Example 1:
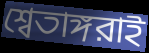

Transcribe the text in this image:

শ্বেতাঙ্গরাই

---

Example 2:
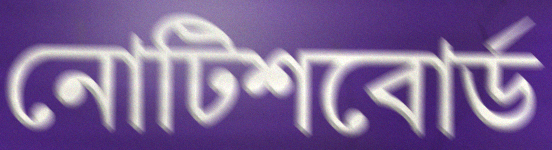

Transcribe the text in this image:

নোটিশবোর্ড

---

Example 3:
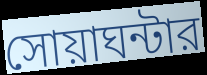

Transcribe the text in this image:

সোয়াঘন্টার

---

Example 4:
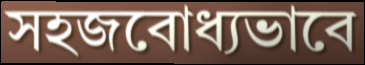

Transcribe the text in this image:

সহজবোধ্যভাবে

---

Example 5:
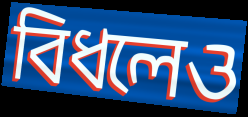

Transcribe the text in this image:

বিধলেও